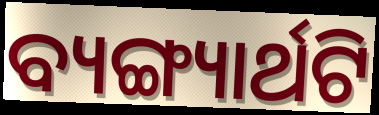
ବ୍ୟଙ୍ଗ୍ୟାର୍ଥଟି